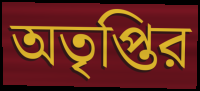
অতৃপ্তির